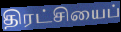
திரட்சியைப்